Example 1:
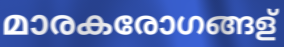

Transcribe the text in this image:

മാരകരോഗങ്ങള്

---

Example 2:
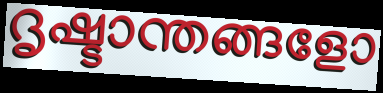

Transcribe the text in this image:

ദൃഷ്ടാന്തങ്ങളോ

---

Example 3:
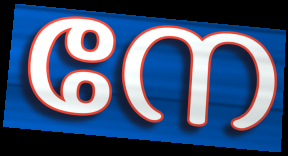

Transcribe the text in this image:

നേ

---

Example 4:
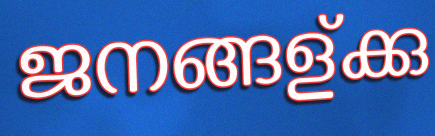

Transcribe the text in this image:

ജനങ്ങള്ക്കു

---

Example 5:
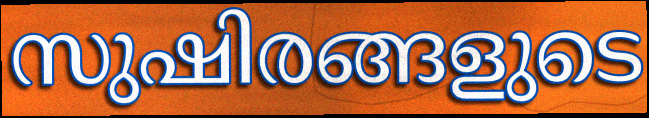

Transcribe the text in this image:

സുഷിരങ്ങളുടെ